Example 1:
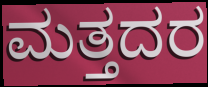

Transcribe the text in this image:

ಮತ್ತದರ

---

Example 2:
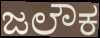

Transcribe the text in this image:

ಜಲೌಕ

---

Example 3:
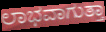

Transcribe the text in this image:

ಲಾಭವಾಗುತ್ತಾ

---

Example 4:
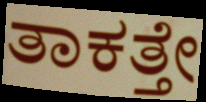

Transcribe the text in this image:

ತಾಕತ್ತೇ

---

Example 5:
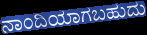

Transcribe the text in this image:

ನಾಂದಿಯಾಗಬಹುದು